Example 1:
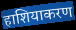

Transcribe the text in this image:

हाशियाकरण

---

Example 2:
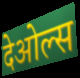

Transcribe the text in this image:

देओल्स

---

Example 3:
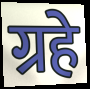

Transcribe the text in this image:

ग्रहे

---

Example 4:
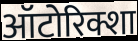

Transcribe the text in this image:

ऑटोरिक्शा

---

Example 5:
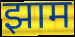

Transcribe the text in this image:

झाम